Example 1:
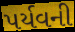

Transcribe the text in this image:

પર્યવની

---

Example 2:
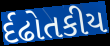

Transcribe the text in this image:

ર્દઢોતકીય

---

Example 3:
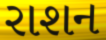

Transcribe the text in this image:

રાશન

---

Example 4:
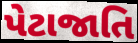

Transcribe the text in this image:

પેટાજાતિ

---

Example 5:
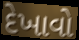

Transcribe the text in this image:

દેખાવો